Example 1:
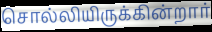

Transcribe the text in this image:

சொல்லியிருக்கின்றார்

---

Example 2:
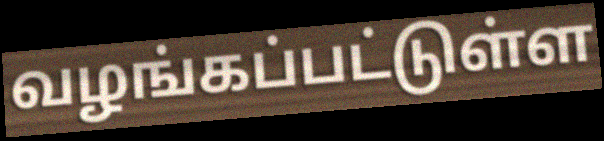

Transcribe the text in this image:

வழங்கப்பட்டுள்ள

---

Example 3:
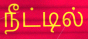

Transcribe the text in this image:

நீட்டில்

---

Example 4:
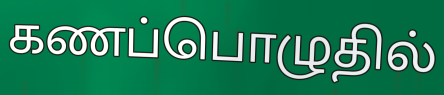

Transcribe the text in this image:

கணப்பொழுதில்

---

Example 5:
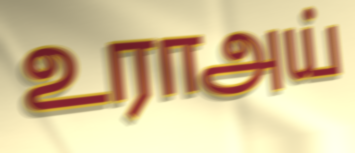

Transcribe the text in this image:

உராஅய்